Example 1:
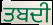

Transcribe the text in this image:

ਤਬਦੀ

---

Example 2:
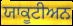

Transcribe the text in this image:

ਯਾਕੂਟੀਅਨ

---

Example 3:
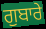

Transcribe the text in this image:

ਗੁਬਾਰੇ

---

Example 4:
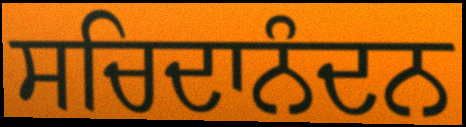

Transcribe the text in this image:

ਸਚਿਦਾਨੰਦਨ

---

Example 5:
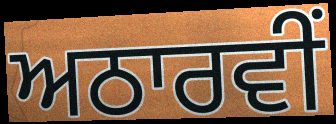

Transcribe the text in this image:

ਅਠਾਰਵੀਂ